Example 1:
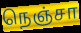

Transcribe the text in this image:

நெஞ்சா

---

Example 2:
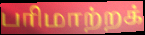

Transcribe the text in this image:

பரிமாற்றக்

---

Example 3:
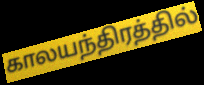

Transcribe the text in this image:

காலயந்திரத்தில்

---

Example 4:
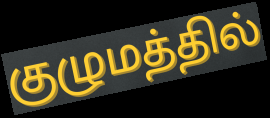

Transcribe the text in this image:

குழுமத்தில்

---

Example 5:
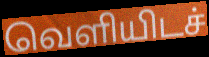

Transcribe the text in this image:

வெளியிடச்